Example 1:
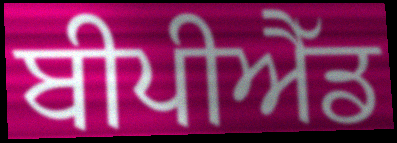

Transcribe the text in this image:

ਬੀਪੀਐੱਡ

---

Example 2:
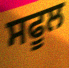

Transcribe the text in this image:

ਸਫੂਲ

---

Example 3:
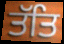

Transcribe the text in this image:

ਤੱਤਿ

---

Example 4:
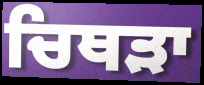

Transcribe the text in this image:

ਚਿਥੜਾ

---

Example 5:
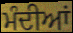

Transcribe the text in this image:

ਮੰਦੀਆਂ